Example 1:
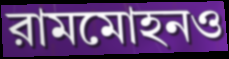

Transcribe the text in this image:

রামমোহনও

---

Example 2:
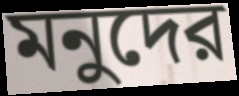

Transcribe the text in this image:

মনুদের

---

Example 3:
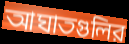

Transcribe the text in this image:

আঘাতগুলির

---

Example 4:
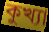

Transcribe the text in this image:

কুখ্যা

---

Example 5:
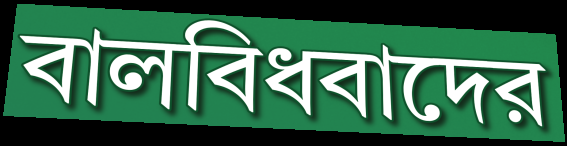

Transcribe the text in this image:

বালবিধবাদের